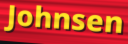
Johnsen